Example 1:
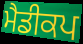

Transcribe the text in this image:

ਮੈਡੀਕਪ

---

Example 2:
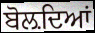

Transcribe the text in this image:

ਬੋਲ਼ਦਿਆਂ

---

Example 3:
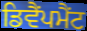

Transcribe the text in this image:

ਡਿਵੈਂਪਮੈਂਟ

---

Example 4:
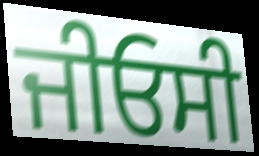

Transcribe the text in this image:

ਜੀਓਸੀ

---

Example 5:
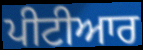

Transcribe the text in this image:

ਪੀਟੀਆਰ